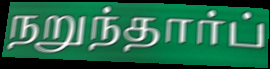
நறுந்தார்ப்